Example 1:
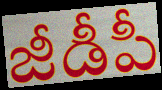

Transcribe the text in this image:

జీడీపీ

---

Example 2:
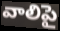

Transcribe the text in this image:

వాలిపై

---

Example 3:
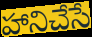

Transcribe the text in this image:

హానిచేసే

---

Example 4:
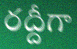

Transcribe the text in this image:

రద్దీగా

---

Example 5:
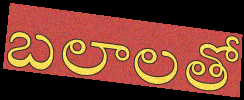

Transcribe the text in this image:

బలాలతో